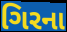
ગિરના